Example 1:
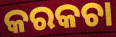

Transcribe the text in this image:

କରକଚା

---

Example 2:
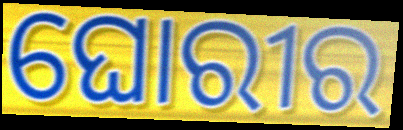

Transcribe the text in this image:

ଘୋରୀର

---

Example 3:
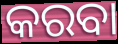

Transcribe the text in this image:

କରବା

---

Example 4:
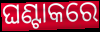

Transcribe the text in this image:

ଘଣ୍ଟାକରେ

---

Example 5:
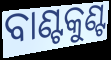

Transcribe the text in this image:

ବାଣ୍ଟକୁଣ୍ଟ